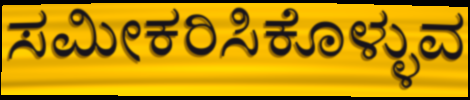
ಸಮೀಕರಿಸಿಕೊಳ್ಳುವ